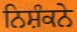
ਨਿਸ਼ੰਕਨੇ